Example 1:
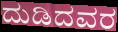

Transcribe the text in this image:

ದುಡಿದವರ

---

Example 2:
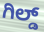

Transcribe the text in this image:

ಗಿಲ್ಡ್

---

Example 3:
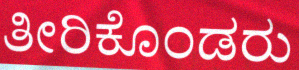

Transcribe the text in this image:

ತೀರಿಕೊಂಡರು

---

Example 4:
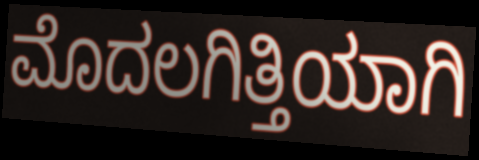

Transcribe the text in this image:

ಮೊದಲಗಿತ್ತಿಯಾಗಿ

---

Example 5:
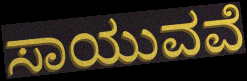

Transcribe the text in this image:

ಸಾಯುವವೆ